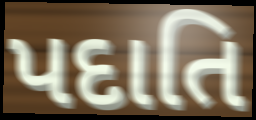
પદાતિ